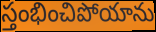
స్తంభించిపోయాను